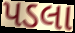
પડલા